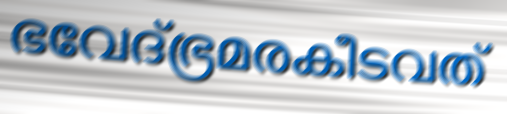
ഭവേദ്ഭ്രമരകീടവത്